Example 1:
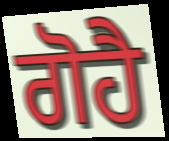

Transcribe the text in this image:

ਗੋਹੈ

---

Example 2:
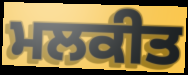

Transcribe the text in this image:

ਮਲਕੀਤ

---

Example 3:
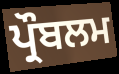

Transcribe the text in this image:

ਪ੍ਰੌਬਲਮ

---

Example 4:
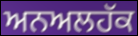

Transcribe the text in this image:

ਅਨਅਲਹੱਕ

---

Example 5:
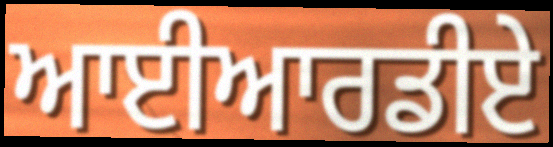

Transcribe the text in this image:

ਆਈਆਰਡੀਏ